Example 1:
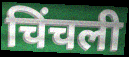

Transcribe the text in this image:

चिंचली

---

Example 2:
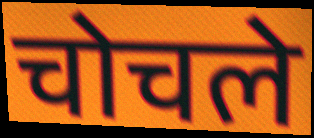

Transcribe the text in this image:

चोचले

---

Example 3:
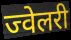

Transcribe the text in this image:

ज्वेलरी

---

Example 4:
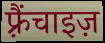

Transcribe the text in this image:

फ़्रैंचाइज़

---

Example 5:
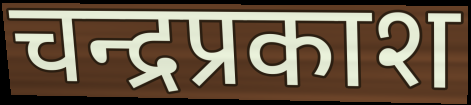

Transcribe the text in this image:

चन्द्रप्रकाश